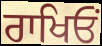
ਰਾਖਿਓਂ